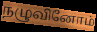
நழுவினோம்